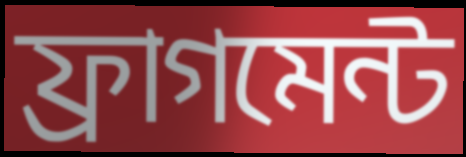
ফ্ৰাগমেন্ট